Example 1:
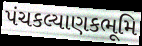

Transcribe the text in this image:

પંચકલ્યાણકભૂમિ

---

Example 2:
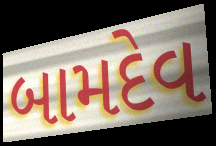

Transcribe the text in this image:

બામદેવ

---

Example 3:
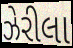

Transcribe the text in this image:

ઝેરીલા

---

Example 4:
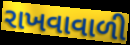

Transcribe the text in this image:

રાખવાવાળી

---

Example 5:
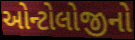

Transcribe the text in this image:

ઓન્ટોલોજીનો